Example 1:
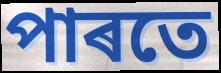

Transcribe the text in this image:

পাৰতে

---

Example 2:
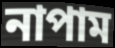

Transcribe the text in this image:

নাপাম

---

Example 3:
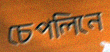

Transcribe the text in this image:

চেপলিনে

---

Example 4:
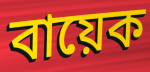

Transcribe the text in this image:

বায়েক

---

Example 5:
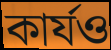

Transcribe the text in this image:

কাৰ্যও